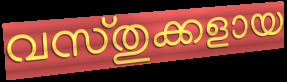
വസ്തുക്കളായ